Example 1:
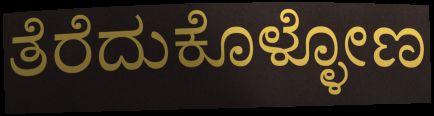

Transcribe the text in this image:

ತೆರೆದುಕೊಳ್ಳೋಣ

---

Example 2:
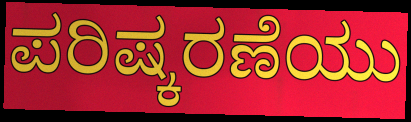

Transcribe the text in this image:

ಪರಿಷ್ಕರಣೆಯು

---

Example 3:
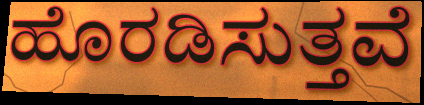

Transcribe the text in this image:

ಹೊರಡಿಸುತ್ತವೆ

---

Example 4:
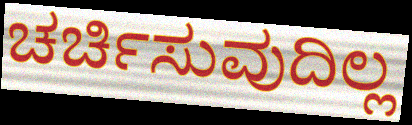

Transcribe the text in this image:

ಚರ್ಚಿಸುವುದಿಲ್ಲ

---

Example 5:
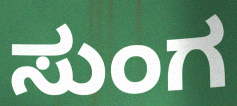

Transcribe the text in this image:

ಸುಂಗ